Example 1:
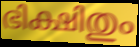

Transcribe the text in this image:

ഭിക്ഷിതും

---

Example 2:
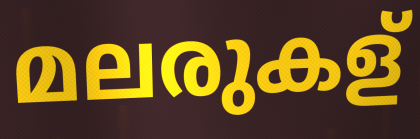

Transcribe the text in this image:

മലരുകള്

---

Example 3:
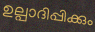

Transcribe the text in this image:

ഉല്പാദിപ്പിക്കും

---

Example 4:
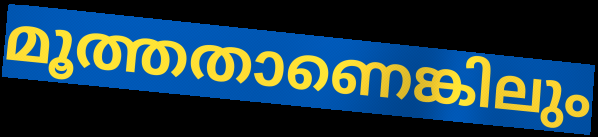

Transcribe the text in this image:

മൂത്തതാണെങ്കിലും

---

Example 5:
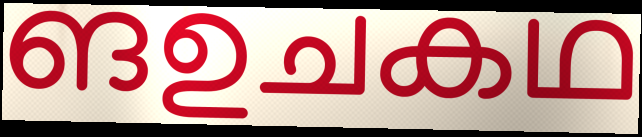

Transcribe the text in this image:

ങഉചകഥ